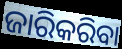
ଜାରିକରିବା